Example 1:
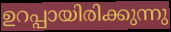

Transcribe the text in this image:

ഉറപ്പായിരിക്കുന്നു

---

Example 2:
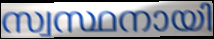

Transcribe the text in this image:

സ്വസ്ഥനായി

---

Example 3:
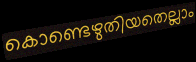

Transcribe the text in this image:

കൊണ്ടെഴുതിയതെല്ലാം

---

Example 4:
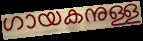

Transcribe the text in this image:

ഗായകനുള്ള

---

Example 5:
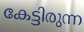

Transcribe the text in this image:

കേട്ടിരുന്ന